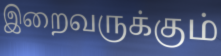
இறைவருக்கும்